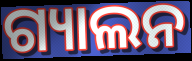
ଗ୍ୟାଲନ